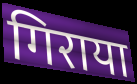
गिराया